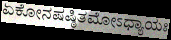
ಏಕೋನಷಷ್ಠಿತಮೋಽಧ್ಯಾಯಃ